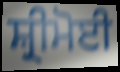
ਸ਼੍ਰੀਮੋਈ